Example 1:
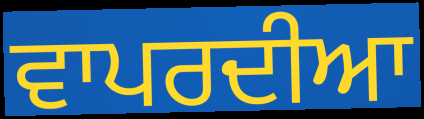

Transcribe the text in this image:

ਵਾਪਰਦੀਆ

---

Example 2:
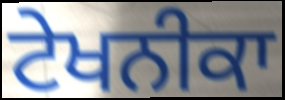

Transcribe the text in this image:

ਟੇਖਨੀਕਾ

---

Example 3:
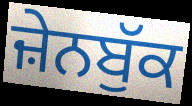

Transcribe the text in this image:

ਜ਼ੇਨਬੁੱਕ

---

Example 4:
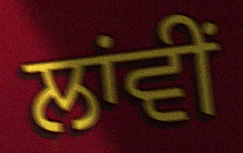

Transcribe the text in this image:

ਲਾਂਵੀਂ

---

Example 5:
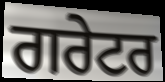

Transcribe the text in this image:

ਗਰੇਟਰ